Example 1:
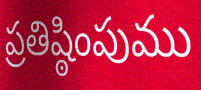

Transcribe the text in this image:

ప్రతిష్ఠింపుము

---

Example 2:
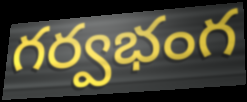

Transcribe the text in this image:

గర్వభంగ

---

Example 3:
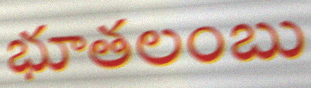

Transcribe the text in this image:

భూతలంబు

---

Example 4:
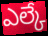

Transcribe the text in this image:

ఎల్కే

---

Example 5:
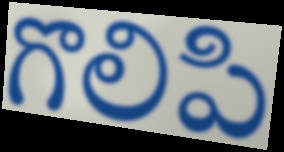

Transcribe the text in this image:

గొలిపి